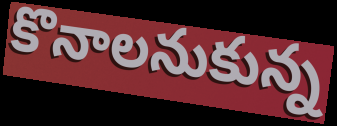
కొనాలనుకున్న